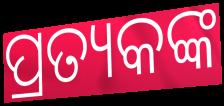
ପ୍ରତ୍ୟକଙ୍କ